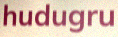
hudugru